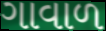
ગાવાળ